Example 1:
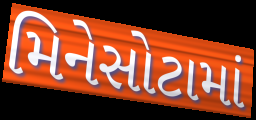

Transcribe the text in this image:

મિનેસોટામાં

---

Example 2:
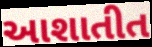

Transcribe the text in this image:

આશાતીત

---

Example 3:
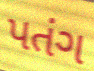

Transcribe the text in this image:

પતંગ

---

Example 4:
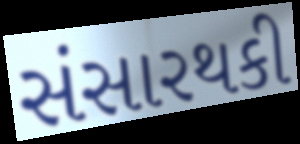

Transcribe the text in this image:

સંસારથકી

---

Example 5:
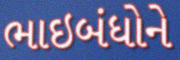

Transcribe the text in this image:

ભાઇબંધોને